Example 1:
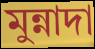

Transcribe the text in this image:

মুন্নাদা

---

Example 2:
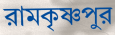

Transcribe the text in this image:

রামকৃষ্ণপুর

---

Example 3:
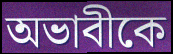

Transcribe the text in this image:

অভাবীকে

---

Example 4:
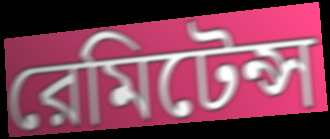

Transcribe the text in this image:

রেমিটেন্স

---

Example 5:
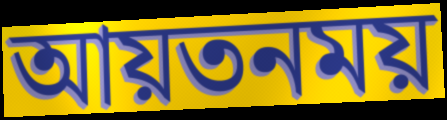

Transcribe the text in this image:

আয়তনময়